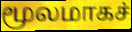
மூலமாகச்